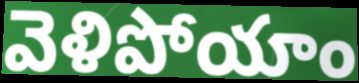
వెళిపోయాం